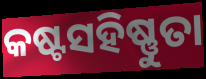
କଷ୍ଟସହିଷ୍ଣୁତା